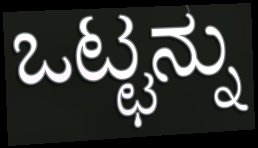
ಒಟ್ಟನ್ನು